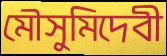
মৌসুমিদেবী